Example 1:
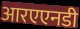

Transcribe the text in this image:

आरएएनडी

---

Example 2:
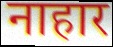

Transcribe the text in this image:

नाहार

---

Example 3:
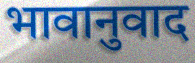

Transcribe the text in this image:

भावानुवाद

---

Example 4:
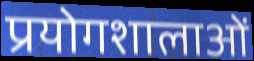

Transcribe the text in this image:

प्रयोगशालाओं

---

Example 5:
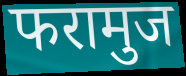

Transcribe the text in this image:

फरामुज